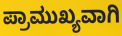
ಪ್ರಾಮುಖ್ಯವಾಗಿ